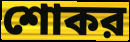
শোকর